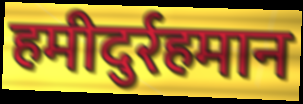
हमीदुर्रहमान